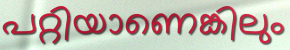
പറ്റിയാണെങ്കിലും